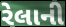
રેલાની